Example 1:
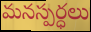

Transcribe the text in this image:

మనస్పర్ధలు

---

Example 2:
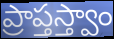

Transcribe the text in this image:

ప్రాప్తస్త్వాం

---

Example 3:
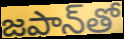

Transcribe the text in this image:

జపాన్‌తో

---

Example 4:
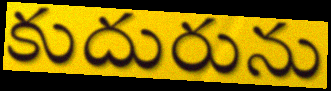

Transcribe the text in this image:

కుదురును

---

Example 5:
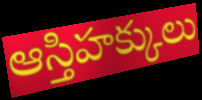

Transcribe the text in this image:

ఆస్తిహక్కులు